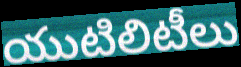
యుటిలిటీలు